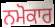
ਨਮੋਕਾਰ